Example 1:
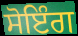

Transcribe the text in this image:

ਸੋਇੰਗ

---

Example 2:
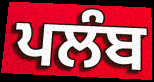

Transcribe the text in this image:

ਪਲੰਬ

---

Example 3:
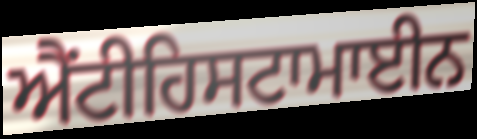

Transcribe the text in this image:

ਐਂਟੀਹਿਸਟਾਮਾਈਨ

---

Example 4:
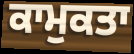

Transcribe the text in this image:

ਕਾਮੁਕਤਾ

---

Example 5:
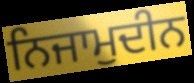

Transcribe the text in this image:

ਨਿਜਾਮੁਦੀਨ